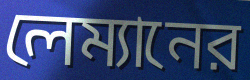
লেম্যানের